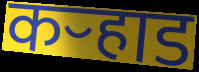
कऱ्हाड